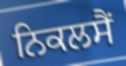
ਨਿਕਲਸੈਂ